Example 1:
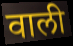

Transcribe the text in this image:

वाली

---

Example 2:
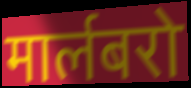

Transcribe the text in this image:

मार्लबरो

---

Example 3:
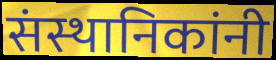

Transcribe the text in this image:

संस्थानिकांनी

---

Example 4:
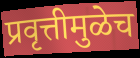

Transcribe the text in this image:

प्रवृत्तीमुळेच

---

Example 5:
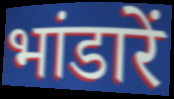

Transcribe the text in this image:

भांडारें